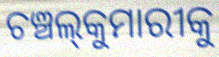
ଚଞ୍ଚଲ୍‍କୁମାରୀକୁ